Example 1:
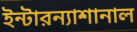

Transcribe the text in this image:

ইন্টারন্যাশানাল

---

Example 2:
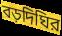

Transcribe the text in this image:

বড়দিঘির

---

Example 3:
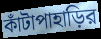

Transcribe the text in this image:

কাঁটাপাহাড়ির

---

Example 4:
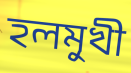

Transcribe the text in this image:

হলমুখী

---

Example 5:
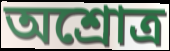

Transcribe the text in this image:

অশ্রোত্র